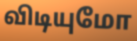
விடியுமோ